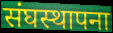
संघस्थापना